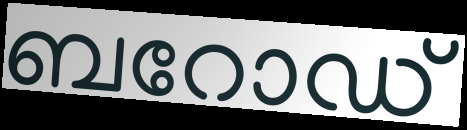
ബറോഡ്